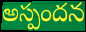
అస్పందన